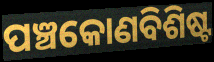
ପଞ୍ଚକୋଣବିଶିଷ୍ଟ